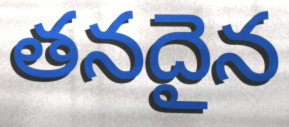
తనదైన